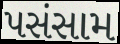
પસંસામ